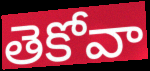
తెకోవా